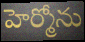
హెర్మోను